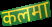
कलमा